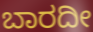
ಬಾರದೀ